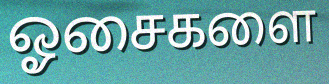
ஓசைகளை